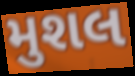
મુશલ